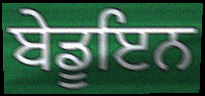
ਬੇਡੂਇਨ